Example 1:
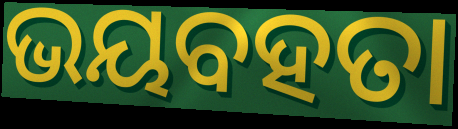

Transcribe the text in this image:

ଭୟବହତା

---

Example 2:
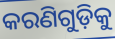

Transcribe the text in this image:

କରଣିଗୁଡ଼ିକୁ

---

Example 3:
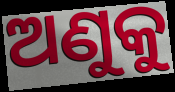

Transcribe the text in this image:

ଅଣୁକୁ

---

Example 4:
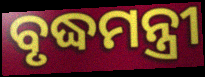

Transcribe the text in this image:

ବୃଦ୍ଧମନ୍ତ୍ରୀ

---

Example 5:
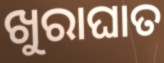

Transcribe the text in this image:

ଖୁରାଘାତ